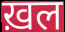
ख़ल